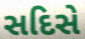
સદિસે